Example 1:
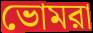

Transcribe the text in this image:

ভোমরা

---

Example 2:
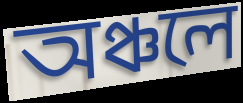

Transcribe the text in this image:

অঞ্চলে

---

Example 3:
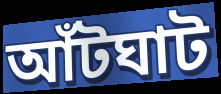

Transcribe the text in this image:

আঁটঘাট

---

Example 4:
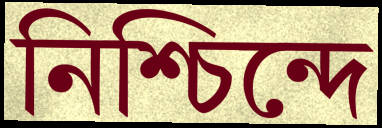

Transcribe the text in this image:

নিশ্চিন্দে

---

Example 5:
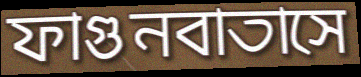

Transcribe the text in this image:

ফাগুনবাতাসে